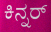
ಕಿನ್ನರ್